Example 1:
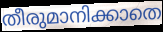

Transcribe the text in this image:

തീരുമാനിക്കാതെ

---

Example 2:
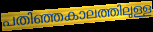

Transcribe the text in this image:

പതിഞ്ഞകാലത്തിലുള്ള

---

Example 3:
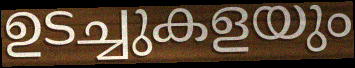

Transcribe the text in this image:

ഉടച്ചുകളയും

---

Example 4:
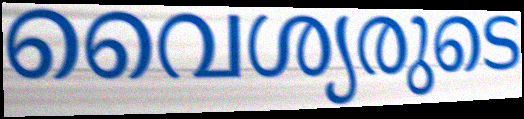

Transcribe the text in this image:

വൈശ്യരുടെ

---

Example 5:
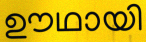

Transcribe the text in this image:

ഊഥായി